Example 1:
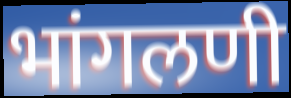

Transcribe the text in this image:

भांगलणी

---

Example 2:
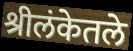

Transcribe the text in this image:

श्रीलंकेतले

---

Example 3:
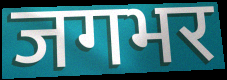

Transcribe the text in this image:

जगभर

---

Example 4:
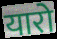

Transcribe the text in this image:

यारो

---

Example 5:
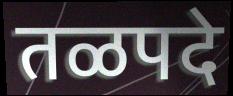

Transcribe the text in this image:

तळपदे